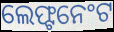
ଲେଫ୍ଟନେଂଟ